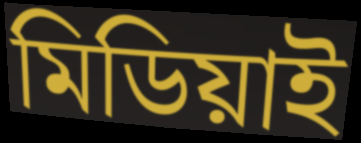
মিডিয়াই